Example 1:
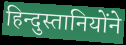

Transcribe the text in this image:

हिन्दुस्तानियोंने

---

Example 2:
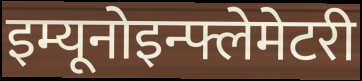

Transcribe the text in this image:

इम्यूनोइन्फ्लेमेटरी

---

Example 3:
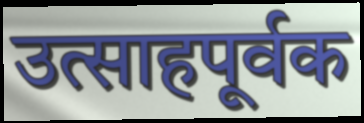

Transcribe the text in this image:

उत्साहपूर्वक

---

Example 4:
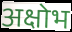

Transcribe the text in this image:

अक्षोभ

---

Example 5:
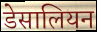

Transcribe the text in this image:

डेसालियन